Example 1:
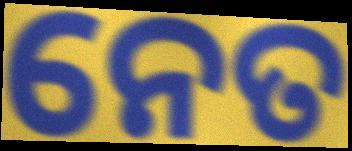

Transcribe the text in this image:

ନେତ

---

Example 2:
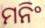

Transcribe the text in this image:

ମନିଂ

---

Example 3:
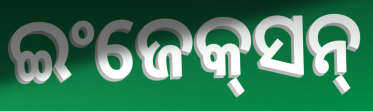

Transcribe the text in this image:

ଇଂଜେକ୍‌ସନ୍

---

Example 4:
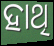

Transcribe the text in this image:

ହାଥି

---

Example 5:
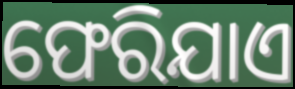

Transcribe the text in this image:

ଫେରିଯାଏ